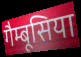
गैम्बूसिया